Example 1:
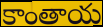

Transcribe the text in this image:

కాంతాయ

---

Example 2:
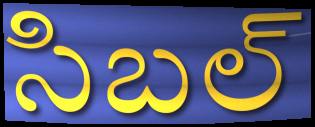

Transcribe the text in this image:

సిబల్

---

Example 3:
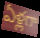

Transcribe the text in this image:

ఏళ్లగా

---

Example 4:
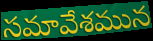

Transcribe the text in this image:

సమావేశమున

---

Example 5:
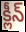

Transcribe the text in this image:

క్లీన్